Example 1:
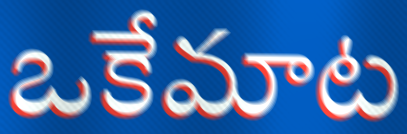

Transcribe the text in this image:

ఒకేమాట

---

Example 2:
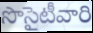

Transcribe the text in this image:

సొసైటీవారి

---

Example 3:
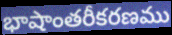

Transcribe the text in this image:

భాషాంతరీకరణము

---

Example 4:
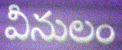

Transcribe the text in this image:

వీనులం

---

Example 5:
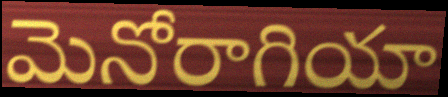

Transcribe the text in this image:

మెనోరాగియా